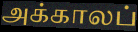
அக்காலப்